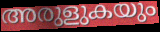
അരുളുകയും